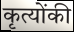
कृत्योंकी